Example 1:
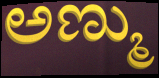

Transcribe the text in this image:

ಅಣ್ಮು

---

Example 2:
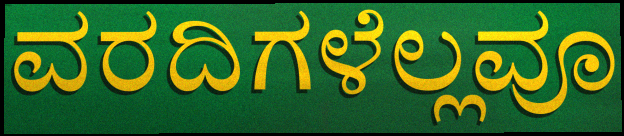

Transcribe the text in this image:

ವರದಿಗಳೆಲ್ಲವೂ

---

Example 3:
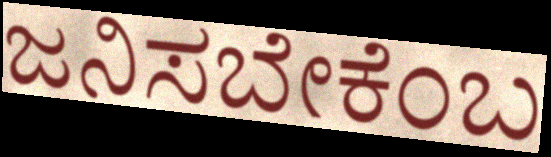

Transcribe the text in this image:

ಜನಿಸಬೇಕೆಂಬ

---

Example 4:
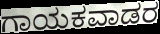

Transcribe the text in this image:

ಗಾಯಕವಾಡರ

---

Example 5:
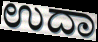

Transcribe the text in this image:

ಉದಾ